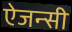
ऐजन्सी